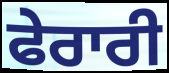
ਫੇਰਾਰੀ